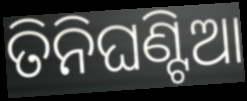
ତିନିଘଣ୍ଟିଆ